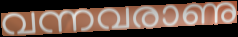
വന്നവരാണു